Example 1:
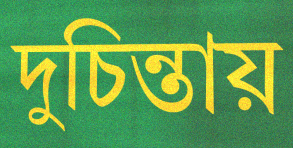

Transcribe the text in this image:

দুচিন্তায়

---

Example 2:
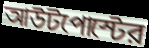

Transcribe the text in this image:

আউটপোস্টের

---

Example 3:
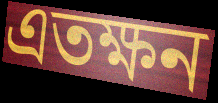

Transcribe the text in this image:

এতক্ষন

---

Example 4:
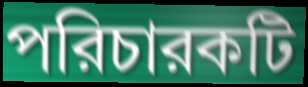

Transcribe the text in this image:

পরিচারকটি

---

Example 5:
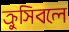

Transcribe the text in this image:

ক্রুসিবলে